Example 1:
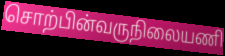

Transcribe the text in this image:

சொற்பின்வருநிலையணி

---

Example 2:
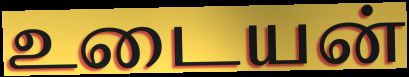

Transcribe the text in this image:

உடையன்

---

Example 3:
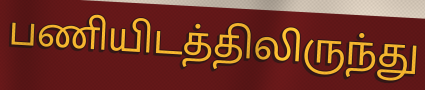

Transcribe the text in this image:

பணியிடத்திலிருந்து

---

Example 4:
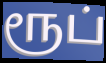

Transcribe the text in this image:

ரூப்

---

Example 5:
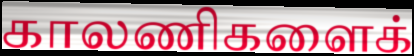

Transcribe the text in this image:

காலணிகளைக்